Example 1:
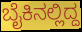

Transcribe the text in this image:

ಬೈಕಿನಲ್ಲಿದ್ದ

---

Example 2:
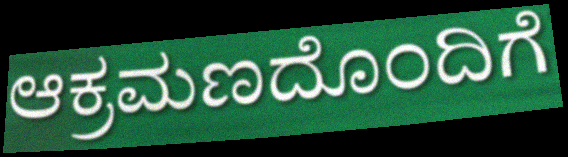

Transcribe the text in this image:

ಆಕ್ರಮಣದೊಂದಿಗೆ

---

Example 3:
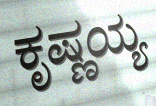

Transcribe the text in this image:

ಕೃಷ್ಣಯ್ಯ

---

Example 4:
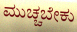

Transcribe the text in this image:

ಮುಚ್ಚಬೇಕು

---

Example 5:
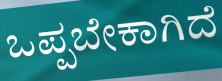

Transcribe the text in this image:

ಒಪ್ಪಬೇಕಾಗಿದೆ